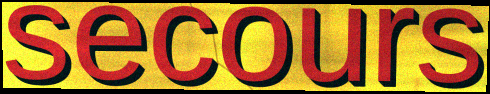
secours